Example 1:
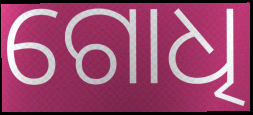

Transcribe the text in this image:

ଗୋଧି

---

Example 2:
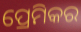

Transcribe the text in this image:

ପ୍ରେମିକର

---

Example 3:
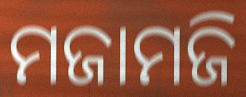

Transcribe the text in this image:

ମଜାମଜି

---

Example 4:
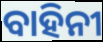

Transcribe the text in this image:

ବାହିନୀ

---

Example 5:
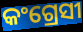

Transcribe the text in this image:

କଂଗ୍ରେସୀ